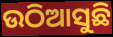
ଉଠିଆସୁଛି